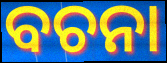
ବଚନା